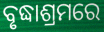
ବୃଦ୍ଧାଶ୍ରମରେ